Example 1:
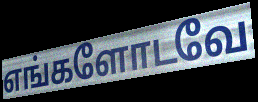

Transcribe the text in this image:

எங்களோடவே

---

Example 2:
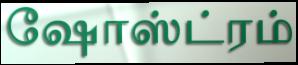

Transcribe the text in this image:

ஷோஸ்ட்ரம்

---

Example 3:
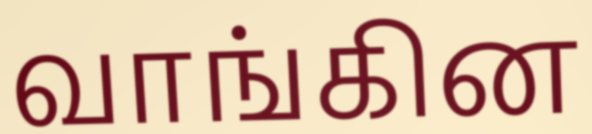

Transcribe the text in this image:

வாங்கின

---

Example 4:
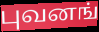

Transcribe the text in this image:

புவனங்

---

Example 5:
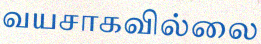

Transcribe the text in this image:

வயசாகவில்லை